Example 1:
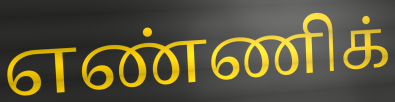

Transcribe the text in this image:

எண்ணிக்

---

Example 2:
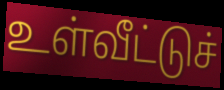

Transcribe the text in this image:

உள்வீட்டுச்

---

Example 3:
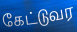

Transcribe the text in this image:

கேட்டுவர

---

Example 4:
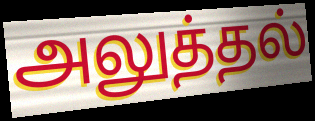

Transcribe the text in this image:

அலுத்தல்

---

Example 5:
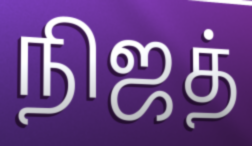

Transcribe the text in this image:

நிஜத்